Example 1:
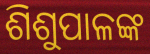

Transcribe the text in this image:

ଶିଶୁପାଳଙ୍କ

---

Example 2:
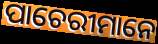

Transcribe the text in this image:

ପାଚେରୀମାନେ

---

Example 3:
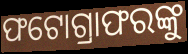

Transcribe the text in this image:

ଫଟୋଗ୍ରାଫରଙ୍କୁ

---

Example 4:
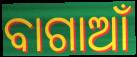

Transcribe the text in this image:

ବାଗାଆଁ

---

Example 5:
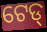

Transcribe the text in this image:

ଟେଡ୍